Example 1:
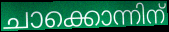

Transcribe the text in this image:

ചാക്കൊന്നിന്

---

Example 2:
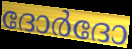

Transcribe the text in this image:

ദോർദോ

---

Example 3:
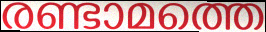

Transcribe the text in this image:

രണ്ടാമത്തെ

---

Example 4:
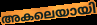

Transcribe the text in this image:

അകലെയായി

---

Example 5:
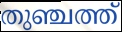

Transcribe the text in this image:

തുഞ്ചത്ത്